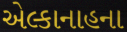
એલ્કાનાહના